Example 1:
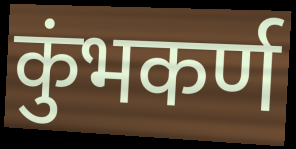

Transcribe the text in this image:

कुंभकर्ण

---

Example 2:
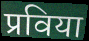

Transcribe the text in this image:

प्रविया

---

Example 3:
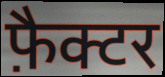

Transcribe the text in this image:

फ़ैक्टर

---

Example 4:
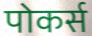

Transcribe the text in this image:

पोकर्स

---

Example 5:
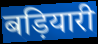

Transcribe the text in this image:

बड़ियारी